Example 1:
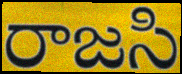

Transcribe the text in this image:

రాజసి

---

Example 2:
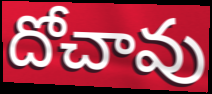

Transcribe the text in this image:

దోచావు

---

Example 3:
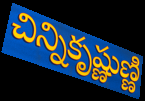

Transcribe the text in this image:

చిన్నికృష్ణుణ్ణి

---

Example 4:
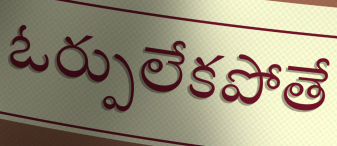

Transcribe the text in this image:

ఓర్పులేకపోతే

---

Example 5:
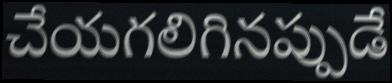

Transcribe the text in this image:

చేయగలిగినప్పుడే